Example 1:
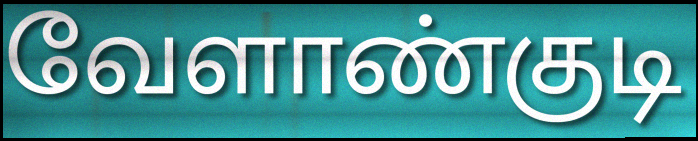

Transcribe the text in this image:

வேளாண்குடி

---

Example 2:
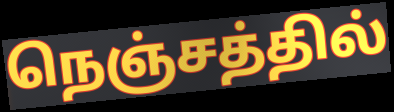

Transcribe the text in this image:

நெஞ்சத்தில்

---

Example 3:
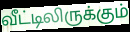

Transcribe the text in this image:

வீட்டிலிருக்கும்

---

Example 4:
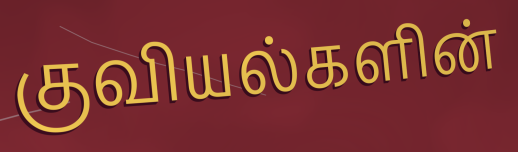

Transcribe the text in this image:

குவியல்களின்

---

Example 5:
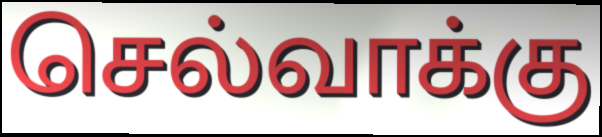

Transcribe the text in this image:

செல்வாக்கு